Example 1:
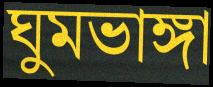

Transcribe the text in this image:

ঘুমভাঙ্গা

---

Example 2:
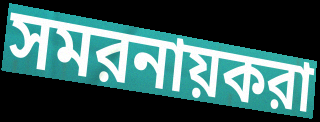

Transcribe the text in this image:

সমরনায়করা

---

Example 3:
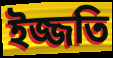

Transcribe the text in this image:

ইজ্জতি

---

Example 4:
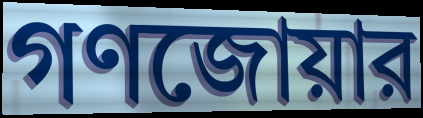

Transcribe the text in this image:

গণজোয়ার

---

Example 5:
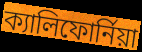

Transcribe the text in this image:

ক্যালিফোর্নিয়া